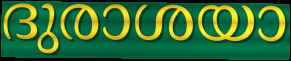
ദുരാശയാ